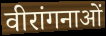
वीरांगनाओं